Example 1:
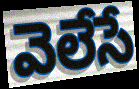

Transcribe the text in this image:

వెలేసే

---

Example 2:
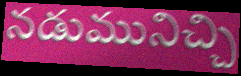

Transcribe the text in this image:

నడుమునిచ్చి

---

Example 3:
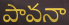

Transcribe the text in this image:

పావనా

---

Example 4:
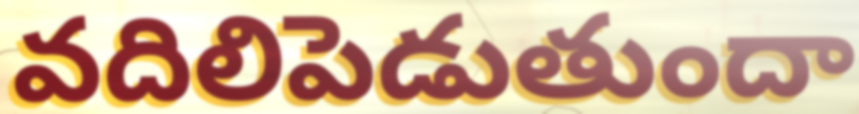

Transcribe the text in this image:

వదిలిపెడుతుందా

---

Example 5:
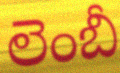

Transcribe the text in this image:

లెంబీ